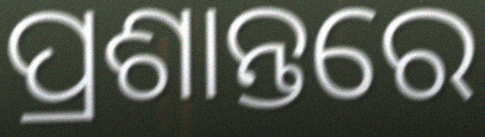
ପ୍ରଶାନ୍ତରେ